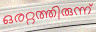
ഒരറ്റത്തിരുന്ന്